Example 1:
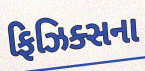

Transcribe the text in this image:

ફિઝિક્સના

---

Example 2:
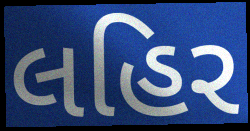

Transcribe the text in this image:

લહિર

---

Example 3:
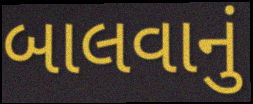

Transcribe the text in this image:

બાલવાનું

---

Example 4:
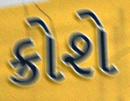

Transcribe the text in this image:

ક્રોશે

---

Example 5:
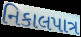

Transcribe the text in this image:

નિકાલપાત્ર